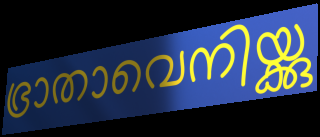
ഭ്രാതാവെനിയ്ക്കു